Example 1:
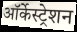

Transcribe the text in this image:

ऑर्केस्ट्रेशन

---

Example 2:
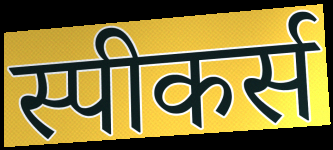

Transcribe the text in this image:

स्पीकर्स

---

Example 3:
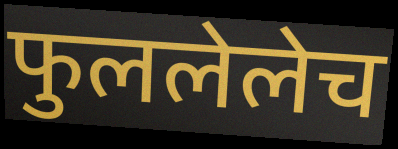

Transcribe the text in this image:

फुललेलेच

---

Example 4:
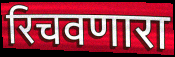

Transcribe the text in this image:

रिचवणारा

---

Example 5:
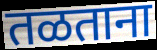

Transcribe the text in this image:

तळताना